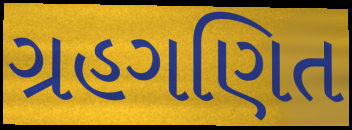
ગ્રહગણિત